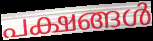
പക്ഷങ്ങൾ